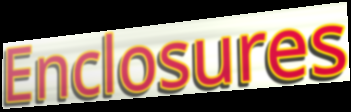
Enclosures